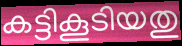
കട്ടികൂടിയതു